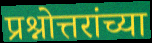
प्रश्नोत्तरांच्या